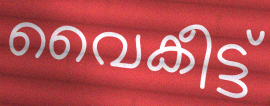
വൈകീട്ട്